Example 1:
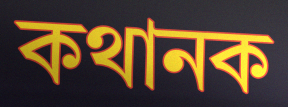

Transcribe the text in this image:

কথানক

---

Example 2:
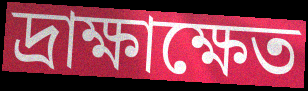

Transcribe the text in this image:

দ্রাক্ষাক্ষেত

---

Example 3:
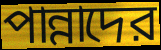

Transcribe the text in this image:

পান্নাদের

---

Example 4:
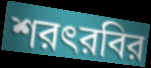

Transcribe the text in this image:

শরৎরবির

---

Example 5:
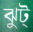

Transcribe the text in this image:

ঝুট্